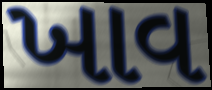
ખાવ